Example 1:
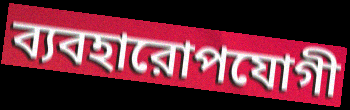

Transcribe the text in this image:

ব্যবহারোপযোগী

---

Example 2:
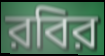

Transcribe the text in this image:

রবির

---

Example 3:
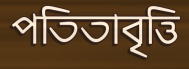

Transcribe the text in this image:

পতিতাবৃত্তি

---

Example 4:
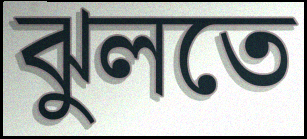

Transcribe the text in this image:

ঝুলতে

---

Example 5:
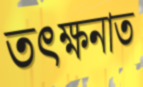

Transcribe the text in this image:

তৎক্ষনাত